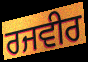
ਰਜਵੀਰ